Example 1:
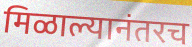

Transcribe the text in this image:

मिळाल्यानंतरच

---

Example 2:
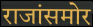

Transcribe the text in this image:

राजांसमोर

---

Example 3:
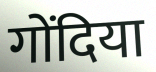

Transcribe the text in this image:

गोंदिया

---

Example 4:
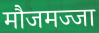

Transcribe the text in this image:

मौजमज्जा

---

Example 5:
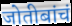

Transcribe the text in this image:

जोतीबांचं